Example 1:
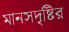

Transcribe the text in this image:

মানসদৃষ্টির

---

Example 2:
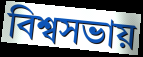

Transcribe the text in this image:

বিশ্বসভায়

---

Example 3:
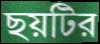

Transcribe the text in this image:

ছয়টির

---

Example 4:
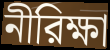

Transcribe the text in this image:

নীরিক্ষা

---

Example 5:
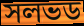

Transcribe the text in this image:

সলভড